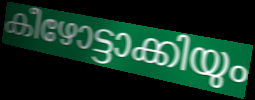
കീഴോട്ടാക്കിയും